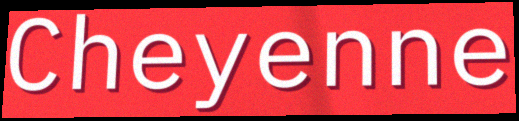
Cheyenne